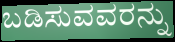
ಬಡಿಸುವವರನ್ನು